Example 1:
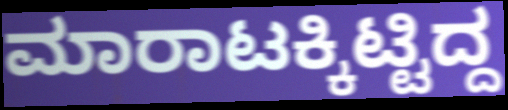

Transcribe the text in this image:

ಮಾರಾಟಕ್ಕಿಟ್ಟಿದ್ದ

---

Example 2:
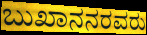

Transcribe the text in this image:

ಬುಖಾನನರವರು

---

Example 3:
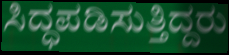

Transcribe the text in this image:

ಸಿದ್ಧಪಡಿಸುತ್ತಿದ್ದರು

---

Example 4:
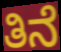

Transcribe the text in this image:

ತಿನೆ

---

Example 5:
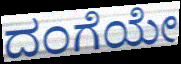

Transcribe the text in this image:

ದಂಗೆಯೇ